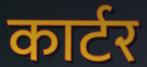
कार्टर